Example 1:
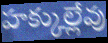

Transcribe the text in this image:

హక్కుల్లేవు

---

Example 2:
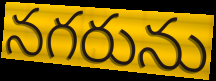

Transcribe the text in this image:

నగరును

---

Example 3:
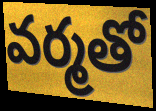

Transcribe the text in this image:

వర్మతో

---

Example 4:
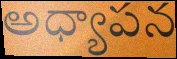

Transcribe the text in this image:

అధ్యాపన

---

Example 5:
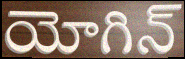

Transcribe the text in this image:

యోగిన్